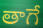
తాగే